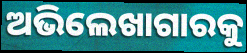
ଅଭିଲେଖାଗାରକୁ